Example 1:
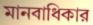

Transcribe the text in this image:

মানবাধিকার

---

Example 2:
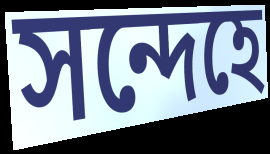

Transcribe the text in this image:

সন্দেহে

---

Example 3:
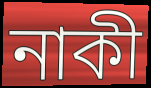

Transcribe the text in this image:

নাকী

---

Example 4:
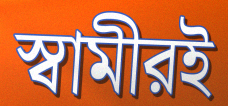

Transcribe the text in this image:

স্বামীরই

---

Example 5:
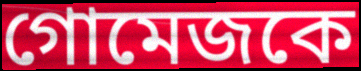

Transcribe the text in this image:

গোমেজকে